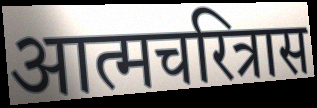
आत्मचरित्रास